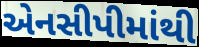
એનસીપીમાંથી